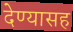
देण्यासह